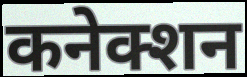
कनेक्शन